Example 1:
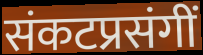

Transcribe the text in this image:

संकटप्रसंगीं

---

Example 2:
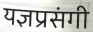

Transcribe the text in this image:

यज्ञप्रसंगी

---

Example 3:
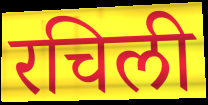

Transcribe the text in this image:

रचिली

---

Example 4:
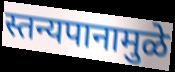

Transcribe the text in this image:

स्तन्यपानामुळे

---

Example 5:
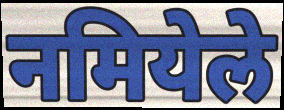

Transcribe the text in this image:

नमियेले